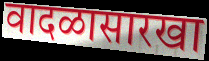
वादळासारखा